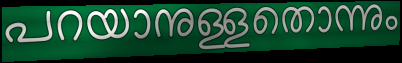
പറയാനുള്ളതൊന്നും